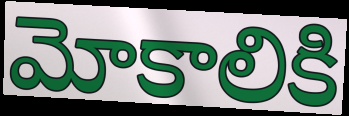
మోకాలికి